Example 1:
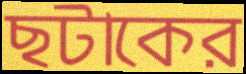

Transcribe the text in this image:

ছটাকের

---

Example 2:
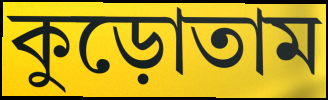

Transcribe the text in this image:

কুড়োতাম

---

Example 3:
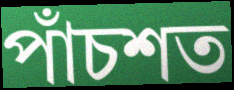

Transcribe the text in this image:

পাঁচশত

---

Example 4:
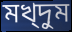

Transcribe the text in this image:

মখ্দুম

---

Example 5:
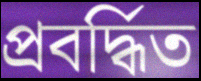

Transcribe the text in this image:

প্রবর্দ্ধিত